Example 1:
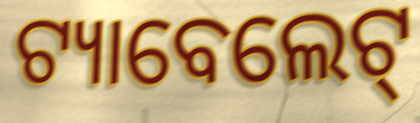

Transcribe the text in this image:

ଟ୍ୟାବେଲେଟ୍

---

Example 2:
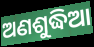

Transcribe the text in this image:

ଅଣଶୁଦ୍ଧିଆ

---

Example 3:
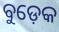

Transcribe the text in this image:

ବୁଡ଼େକ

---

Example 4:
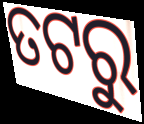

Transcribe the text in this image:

ତଟରୁ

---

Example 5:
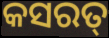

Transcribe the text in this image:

କସରତ୍